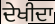
ਦੇਖੀਦਾ